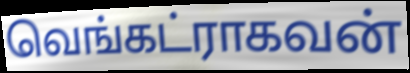
வெங்கட்ராகவன்